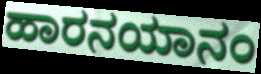
ಹಾರನಯಾನಂ